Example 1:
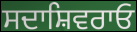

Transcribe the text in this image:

ਸਦਾਸ਼ਿਵਰਾਓ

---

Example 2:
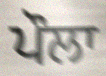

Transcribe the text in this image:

ਪੌਲਾ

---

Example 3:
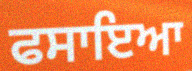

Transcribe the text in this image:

ਫਸਾਇਆ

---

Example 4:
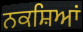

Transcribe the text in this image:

ਨਕਸ਼ਿਆਂ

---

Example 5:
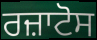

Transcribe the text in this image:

ਰਜ਼ਾਟੋਸ